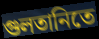
গুলতানিতে